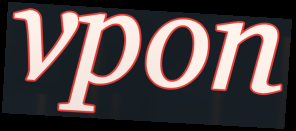
vpon